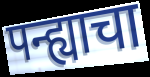
पन्ह्याचा